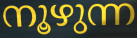
നൂഴുന്ന